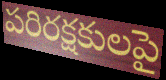
పరిరక్షకులపై